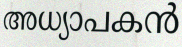
അധ്യാപകൻ